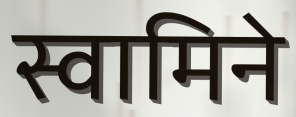
स्वामिने